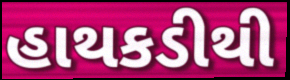
હાથકડીથી